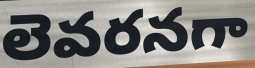
లెవరనగా